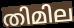
തിമില